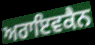
ਅਰਾਇਵਕੈਨ